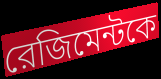
রেজিমেন্টকে